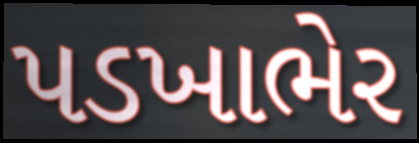
પડખાભેર